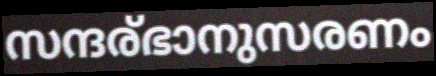
സന്ദര്ഭാനുസരണം